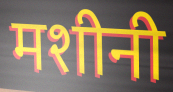
मशीनी